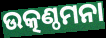
ଉତ୍କଣ୍ଠମନା